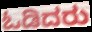
ಓಡಿದರು